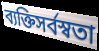
ব্যক্তিসর্বস্বতা